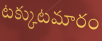
టక్కుటమారం